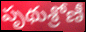
పృథుశ్రోణీ